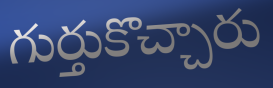
గుర్తుకొచ్చారు